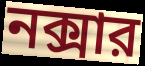
নক্সার